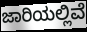
ಜಾರಿಯಲ್ಲಿವೆ